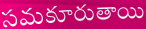
సమకూరుతాయి